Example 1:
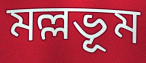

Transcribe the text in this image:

মল্লভূম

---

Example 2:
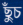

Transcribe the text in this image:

ছুঁচ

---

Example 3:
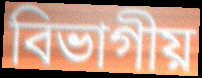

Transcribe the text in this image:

বিভাগীয়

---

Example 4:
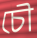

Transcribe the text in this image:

চৌ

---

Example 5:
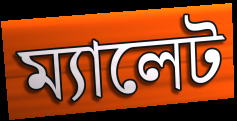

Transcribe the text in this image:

ম্যালেট